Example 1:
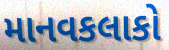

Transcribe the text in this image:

માનવકલાકો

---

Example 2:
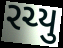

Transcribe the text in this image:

રચ્યુ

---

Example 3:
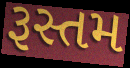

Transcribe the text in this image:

રૂસ્તમ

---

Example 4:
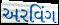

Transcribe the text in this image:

અરવિંગ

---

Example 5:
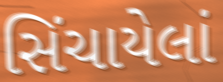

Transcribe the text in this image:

સિંચાયેલાં